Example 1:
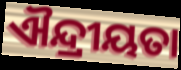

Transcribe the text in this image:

ଐନ୍ଦ୍ରୀୟତା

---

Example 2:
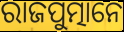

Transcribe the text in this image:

ରାଜପୁତ୍ମାନେ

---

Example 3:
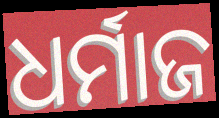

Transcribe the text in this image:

ଧର୍ମାଜ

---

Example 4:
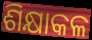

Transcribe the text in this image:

ଶିକ୍ଷାକଳ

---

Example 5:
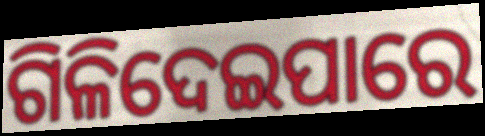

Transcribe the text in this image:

ଗିଳିଦେଇପାରେ